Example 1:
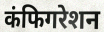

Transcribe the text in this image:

कंफिगरेशन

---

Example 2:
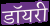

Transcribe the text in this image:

डॉयरी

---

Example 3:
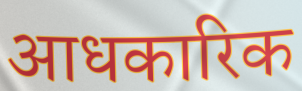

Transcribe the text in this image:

आधकारिक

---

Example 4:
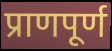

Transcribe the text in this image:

प्राणपूर्ण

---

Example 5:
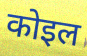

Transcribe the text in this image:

कोइल